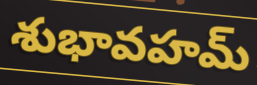
శుభావహమ్